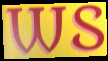
WS